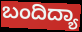
ಬಂದಿದ್ಯಾ